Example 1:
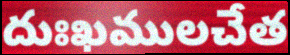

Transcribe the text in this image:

దుఃఖములచేత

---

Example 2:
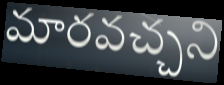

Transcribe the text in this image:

మారవచ్చని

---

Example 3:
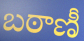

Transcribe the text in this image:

బఠాణీ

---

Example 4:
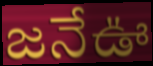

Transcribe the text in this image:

జనేఊ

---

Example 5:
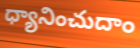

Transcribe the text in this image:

ధ్యానించుదాం